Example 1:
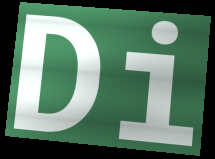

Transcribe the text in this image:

Di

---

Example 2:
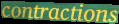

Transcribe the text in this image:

contractions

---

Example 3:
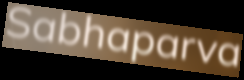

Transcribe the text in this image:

Sabhaparva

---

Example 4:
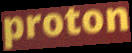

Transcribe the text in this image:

proton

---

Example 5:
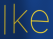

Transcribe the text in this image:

Ike